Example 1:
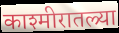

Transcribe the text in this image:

काश्मीरातल्या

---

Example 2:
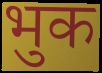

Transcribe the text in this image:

भुक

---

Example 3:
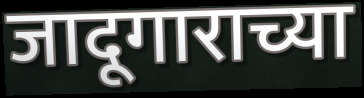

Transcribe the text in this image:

जादूगाराच्या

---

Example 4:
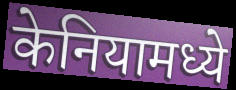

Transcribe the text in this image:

केनियामध्ये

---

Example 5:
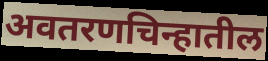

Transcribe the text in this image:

अवतरणचिन्हातील